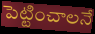
పెట్టించాలనే